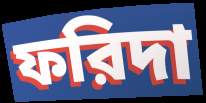
ফরিদা